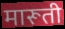
मारूती